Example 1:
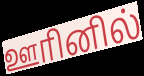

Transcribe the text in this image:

ஊரினில்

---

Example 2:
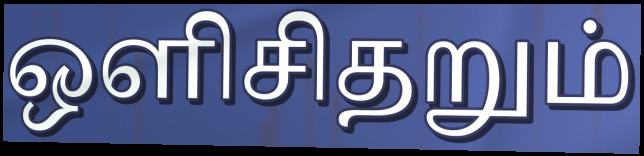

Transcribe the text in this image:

ஒளிசிதறும்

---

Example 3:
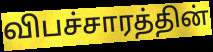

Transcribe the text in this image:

விபச்சாரத்தின்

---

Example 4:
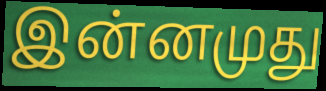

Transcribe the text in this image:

இன்னமுது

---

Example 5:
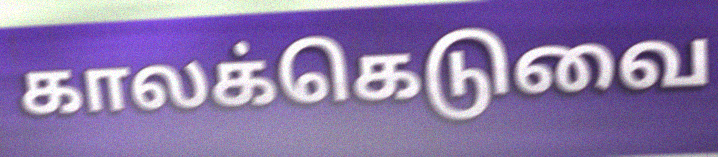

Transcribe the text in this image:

காலக்கெடுவை